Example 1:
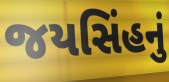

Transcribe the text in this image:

જયસિંહનું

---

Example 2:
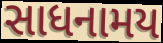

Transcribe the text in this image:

સાધનામય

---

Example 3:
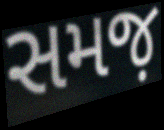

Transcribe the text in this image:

સમજ઼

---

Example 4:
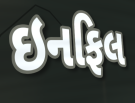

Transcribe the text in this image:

ઇનફિલ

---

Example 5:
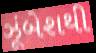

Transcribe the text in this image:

ઝૂંબેશથી